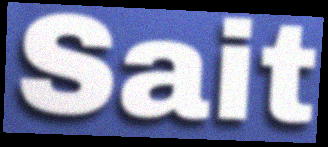
Sait